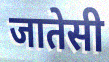
जातेसी